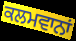
ਕਲਮਵਾਨਾਂ